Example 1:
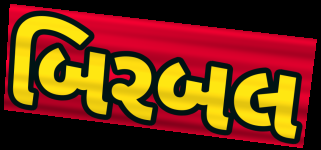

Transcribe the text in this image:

બિરબલ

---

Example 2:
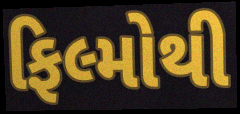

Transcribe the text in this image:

ફિલ્મોથી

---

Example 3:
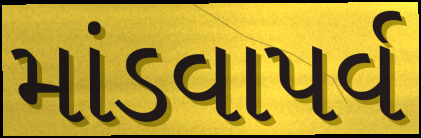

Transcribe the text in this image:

માંડવાપર્વ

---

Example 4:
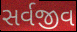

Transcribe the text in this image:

સર્વજીવ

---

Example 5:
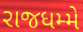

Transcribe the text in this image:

રાજધમ્મે